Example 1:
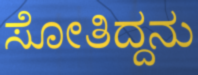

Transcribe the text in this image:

ಸೋತಿದ್ದನು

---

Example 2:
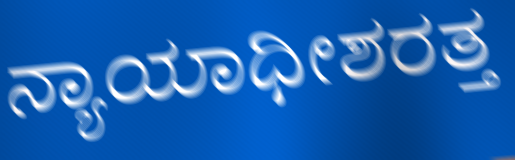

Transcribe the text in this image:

ನ್ಯಾಯಾಧೀಶರತ್ತ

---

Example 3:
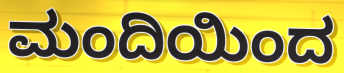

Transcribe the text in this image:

ಮಂದಿಯಿಂದ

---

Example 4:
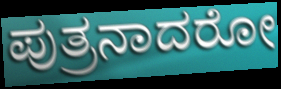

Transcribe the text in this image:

ಪುತ್ರನಾದರೋ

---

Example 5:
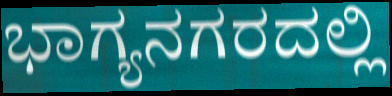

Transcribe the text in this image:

ಭಾಗ್ಯನಗರದಲ್ಲಿ